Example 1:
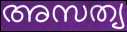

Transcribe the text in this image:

അസത്യ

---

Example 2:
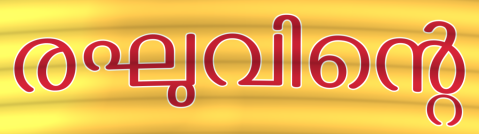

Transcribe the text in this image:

രഘുവിന്റെ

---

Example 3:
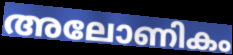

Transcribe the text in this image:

അലോണികം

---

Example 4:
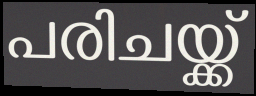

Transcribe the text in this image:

പരിചയ്ക്ക്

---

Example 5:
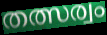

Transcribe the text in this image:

തത്സര്വം